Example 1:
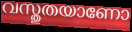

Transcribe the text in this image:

വസ്തുതയാണോ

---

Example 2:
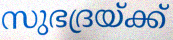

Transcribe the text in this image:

സുഭദ്രയ്ക്ക്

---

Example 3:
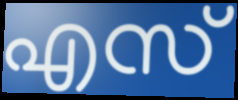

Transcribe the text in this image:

എസ്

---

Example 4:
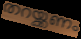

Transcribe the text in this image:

തറയ്ക്കണം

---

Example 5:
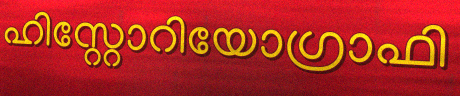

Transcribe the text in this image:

ഹിസ്റ്റോറിയോഗ്രാഫി